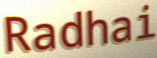
Radhai